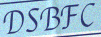
DSBFC